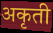
अकृती